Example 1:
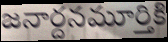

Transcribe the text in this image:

జనార్దనమూర్తికి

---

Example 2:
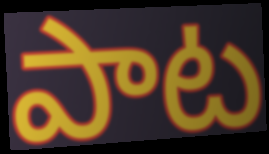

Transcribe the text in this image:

పాట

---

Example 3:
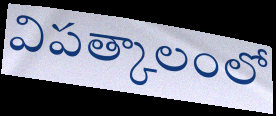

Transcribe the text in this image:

విపత్కాలంలో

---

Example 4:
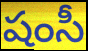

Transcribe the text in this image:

షంసీ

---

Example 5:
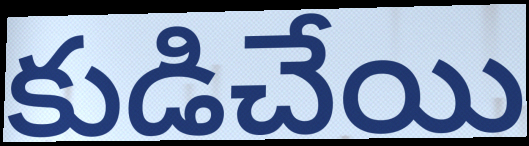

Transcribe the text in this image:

కుడిచేయి